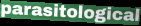
parasitological